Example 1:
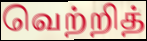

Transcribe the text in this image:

வெற்றித்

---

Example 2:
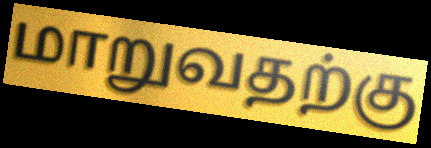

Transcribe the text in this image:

மாறுவதற்கு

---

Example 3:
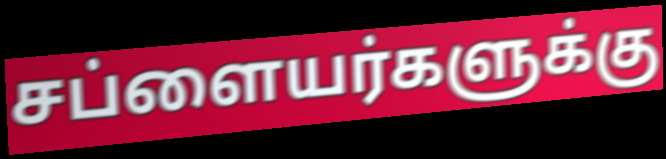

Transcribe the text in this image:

சப்ளையர்களுக்கு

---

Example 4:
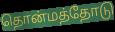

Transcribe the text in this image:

தொன்மத்தோடு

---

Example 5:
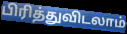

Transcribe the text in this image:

பிரித்துவிடலாம்